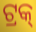
ଟ୍ରକ୍